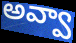
అవ్వా